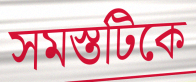
সমস্তটিকে